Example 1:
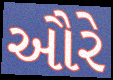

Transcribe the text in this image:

ઔરે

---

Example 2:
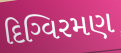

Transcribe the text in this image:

દિગ્વિરમણ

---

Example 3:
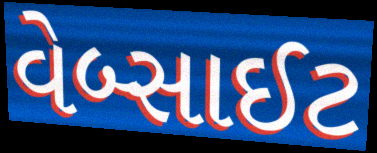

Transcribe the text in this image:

વેબ્સાઈટ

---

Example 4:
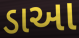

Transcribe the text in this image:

ડાઆ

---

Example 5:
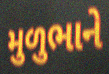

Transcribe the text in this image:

મુળુભાને